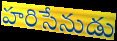
హరిసేనుడు